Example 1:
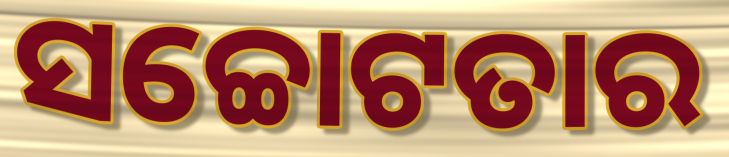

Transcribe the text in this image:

ସଚ୍ଚୋଟତାର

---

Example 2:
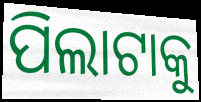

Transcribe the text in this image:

ପିଲାଟାକୁ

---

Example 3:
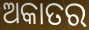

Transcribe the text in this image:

ଅକାତର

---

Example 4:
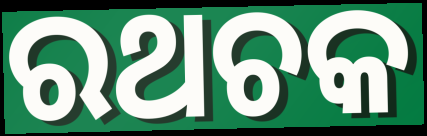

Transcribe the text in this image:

ରଥଚକ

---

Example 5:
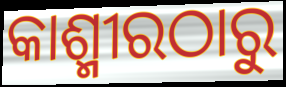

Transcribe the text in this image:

କାଶ୍ମୀରଠାରୁ